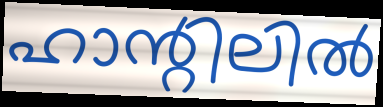
ഹാന്റിലിൽ